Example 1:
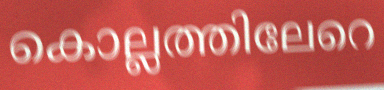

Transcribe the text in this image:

കൊല്ലത്തിലേറെ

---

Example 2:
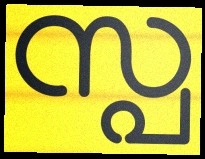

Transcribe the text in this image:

സ്പ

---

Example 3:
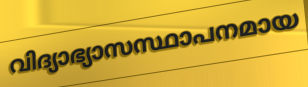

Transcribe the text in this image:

വിദ്യാഭ്യാസസ്ഥാപനമായ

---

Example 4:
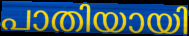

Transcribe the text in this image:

പാതിയായി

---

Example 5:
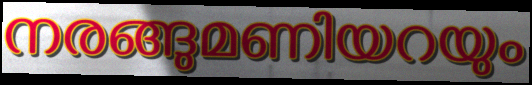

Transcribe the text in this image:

നരങ്ങുമണിയറയും